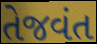
તેજવંત